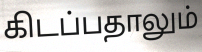
கிடப்பதாலும்